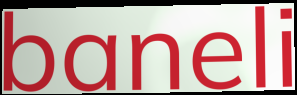
baneli